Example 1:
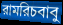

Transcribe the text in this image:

রামরিচবাবু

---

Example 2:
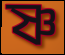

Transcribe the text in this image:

ষ্ণ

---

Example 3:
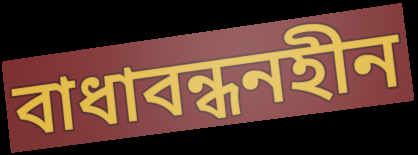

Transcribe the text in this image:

বাধাবন্ধনহীন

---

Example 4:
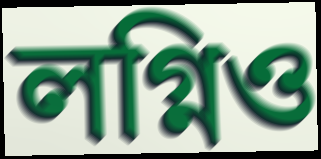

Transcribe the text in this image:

লগ্নিও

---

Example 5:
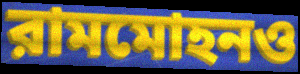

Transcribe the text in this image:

রামমোহনও